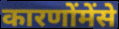
कारणोंमेंसे